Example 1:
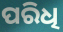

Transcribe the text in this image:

ପରିଧି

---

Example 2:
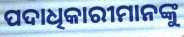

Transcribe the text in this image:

ପଦାଧିକାରୀମାନଙ୍କୁ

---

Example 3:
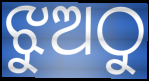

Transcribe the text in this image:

ଝୁଅଠୁ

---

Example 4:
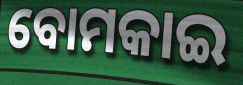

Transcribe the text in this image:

ବୋମକାଇ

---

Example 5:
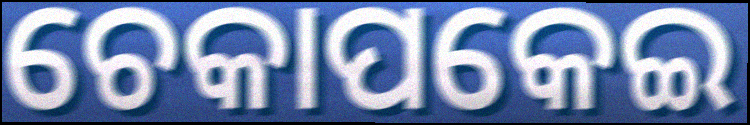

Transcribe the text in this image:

ଚେକାପକେଇ